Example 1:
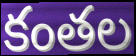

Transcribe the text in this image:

కంతల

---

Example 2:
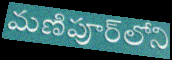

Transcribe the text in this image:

మణిపూర్‌లోని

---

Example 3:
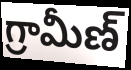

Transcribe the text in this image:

గ్రామీణ్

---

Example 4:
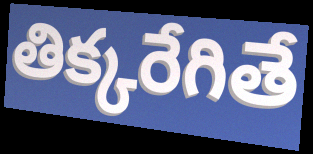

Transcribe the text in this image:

తిక్కరేగితే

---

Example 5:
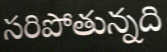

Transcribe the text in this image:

సరిపోతున్నది